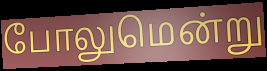
போலுமென்று